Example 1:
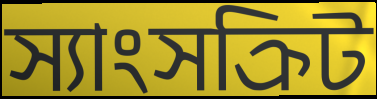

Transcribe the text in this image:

স্যাংসক্রিট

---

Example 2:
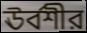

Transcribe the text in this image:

ঊর্বশীর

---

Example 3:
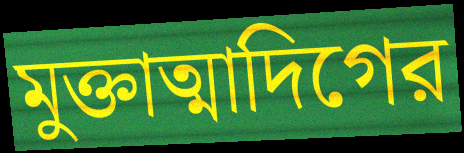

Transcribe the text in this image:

মুক্তাত্মাদিগের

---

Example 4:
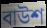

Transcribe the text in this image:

বাউশ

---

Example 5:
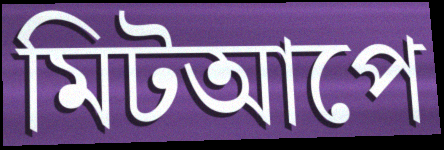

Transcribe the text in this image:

মিটআপে